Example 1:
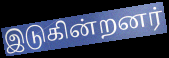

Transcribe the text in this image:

இடுகின்றனர்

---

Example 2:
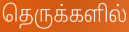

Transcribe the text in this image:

தெருக்களில்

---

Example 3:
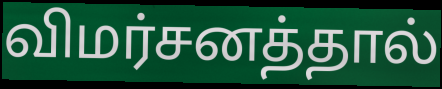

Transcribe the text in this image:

விமர்சனத்தால்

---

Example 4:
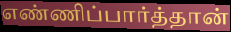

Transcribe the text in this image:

எண்ணிப்பார்த்தான்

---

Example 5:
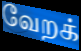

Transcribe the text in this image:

வேறக்